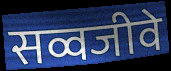
सव्वजीवे